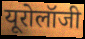
यूरोलॉजी